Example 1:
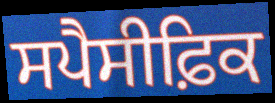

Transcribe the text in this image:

ਸਪੈਸੀਫ਼ਿਕ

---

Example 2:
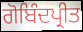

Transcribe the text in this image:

ਗੋਬਿੰਦਪ੍ਰੀਤ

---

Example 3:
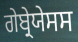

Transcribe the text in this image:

ਗੇਬ੍ਰੇਯੇਸਸ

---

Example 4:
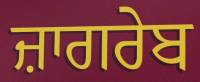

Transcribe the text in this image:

ਜ਼ਾਗਰੇਬ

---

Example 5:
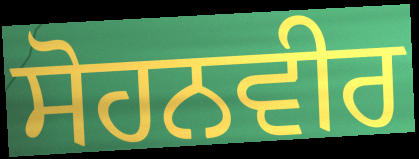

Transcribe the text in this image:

ਸੋਹਨਵੀਰ